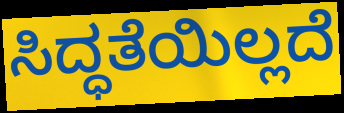
ಸಿದ್ಧತೆಯಿಲ್ಲದೆ